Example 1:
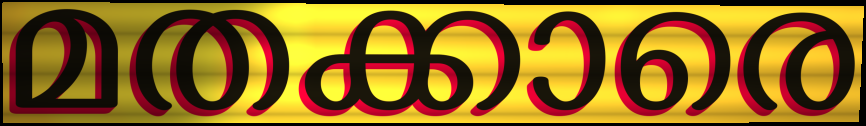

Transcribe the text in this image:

മതക്കാരെ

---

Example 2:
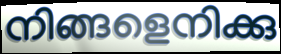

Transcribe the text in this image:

നിങ്ങളെനിക്കു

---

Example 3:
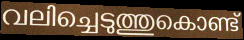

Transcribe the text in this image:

വലിച്ചെടുത്തുകൊണ്ട്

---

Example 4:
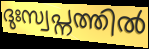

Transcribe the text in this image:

ദുഃസ്വപ്നത്തിൽ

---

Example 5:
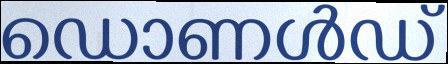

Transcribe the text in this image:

ഡൊണൾഡ്